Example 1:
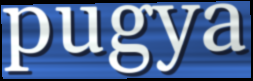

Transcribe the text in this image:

pugya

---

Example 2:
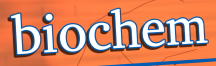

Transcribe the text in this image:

biochem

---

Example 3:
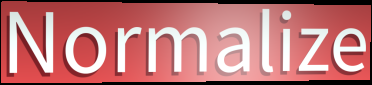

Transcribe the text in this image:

Normalize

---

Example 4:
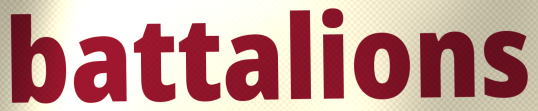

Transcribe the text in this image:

battalions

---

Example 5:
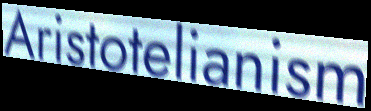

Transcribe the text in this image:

Aristotelianism